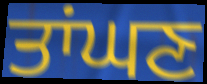
ਤਾਂਘਣ